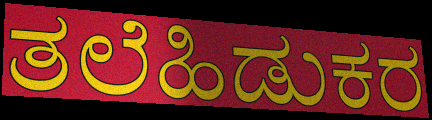
ತಲೆಹಿಡುಕರ